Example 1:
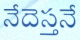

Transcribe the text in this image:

నేదెస్తనే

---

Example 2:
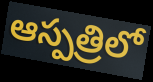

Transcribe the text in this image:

ఆస్పత్రిలో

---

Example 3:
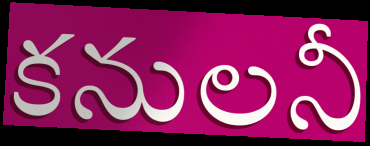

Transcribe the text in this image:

కనులనీ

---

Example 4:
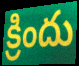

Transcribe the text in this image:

క్రిందు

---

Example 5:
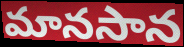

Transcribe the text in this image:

మానసాన